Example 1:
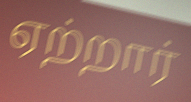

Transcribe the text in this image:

ஏற்றார்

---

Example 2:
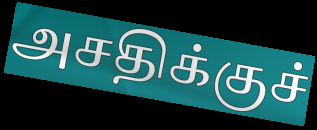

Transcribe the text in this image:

அசதிக்குச்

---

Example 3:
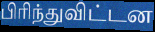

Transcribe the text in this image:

பிரிந்துவிட்டன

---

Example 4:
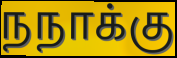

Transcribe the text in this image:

நநாக்கு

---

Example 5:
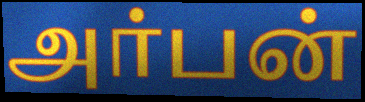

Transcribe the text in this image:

அர்பன்